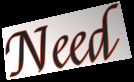
Need